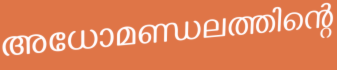
അധോമണ്ഡലത്തിന്റെ